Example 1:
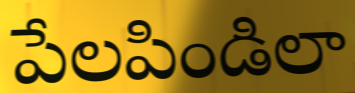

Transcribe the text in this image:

పేలపిండిలా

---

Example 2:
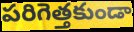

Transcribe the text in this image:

పరిగెత్తకుండా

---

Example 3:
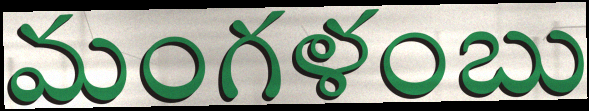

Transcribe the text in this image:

మంగళంబు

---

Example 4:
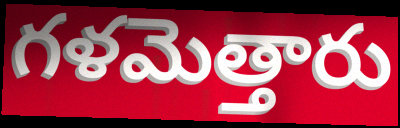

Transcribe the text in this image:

గళమెత్తారు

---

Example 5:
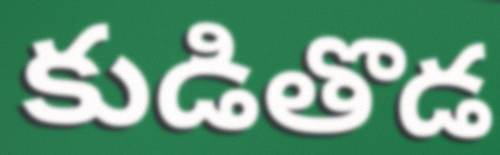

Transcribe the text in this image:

కుడితొడ